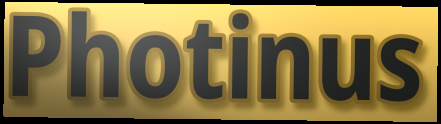
Photinus